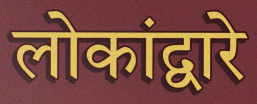
लोकांद्वारे